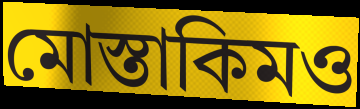
মোস্তাকিমও